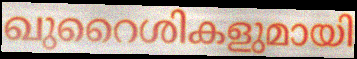
ഖുറൈശികളുമായി